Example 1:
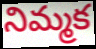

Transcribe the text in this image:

నిమ్మక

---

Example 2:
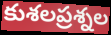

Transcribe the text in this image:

కుశలప్రశ్నల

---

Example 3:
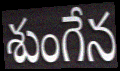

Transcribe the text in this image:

శుంగేన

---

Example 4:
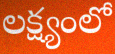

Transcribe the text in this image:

లక్ష్యంలో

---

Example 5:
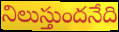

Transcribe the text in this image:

నిలుస్తుందనేది